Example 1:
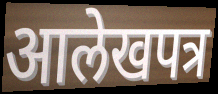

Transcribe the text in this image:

आलेखपत्र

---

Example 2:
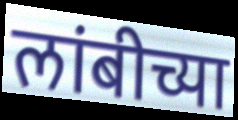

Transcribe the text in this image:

लांबीच्या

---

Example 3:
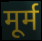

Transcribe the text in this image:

मूर्म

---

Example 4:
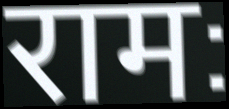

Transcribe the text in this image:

रामः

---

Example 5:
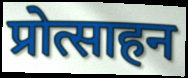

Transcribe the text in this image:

प्रोत्साहन